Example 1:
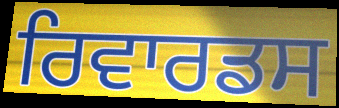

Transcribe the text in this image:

ਰਿਵਾਰਡਸ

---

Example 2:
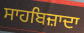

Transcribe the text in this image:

ਸਾਹਬਿਜ਼ਾਦਾ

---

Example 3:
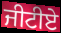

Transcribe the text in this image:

ਜੀਟੀਏ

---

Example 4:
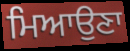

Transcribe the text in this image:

ਮਿਆਉਣਾ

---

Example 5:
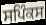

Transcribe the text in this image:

ਸਪਿੰਕਸ